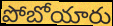
పోబోయారు